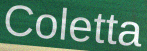
Coletta